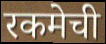
रकमेची